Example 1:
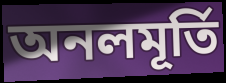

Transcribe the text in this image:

অনলমূর্তি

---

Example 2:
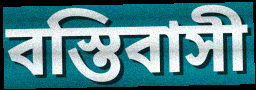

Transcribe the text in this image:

বস্তিবাসী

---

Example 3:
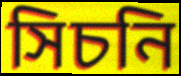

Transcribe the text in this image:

সিচনি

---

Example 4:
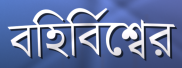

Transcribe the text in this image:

বহির্বিশ্বের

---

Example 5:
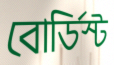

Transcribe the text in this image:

বোর্ডিস্ট